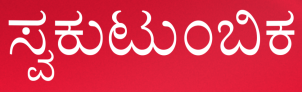
ಸ್ವಕುಟುಂಬಿಕ